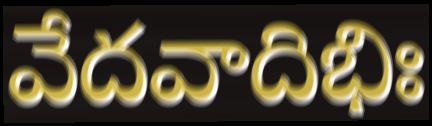
వేదవాదిభిః